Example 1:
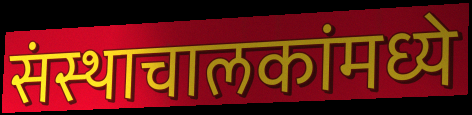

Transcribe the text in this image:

संस्थाचालकांमध्ये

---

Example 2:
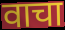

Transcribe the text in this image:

वाचा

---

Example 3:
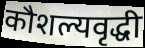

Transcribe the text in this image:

कौशल्यवृद्धी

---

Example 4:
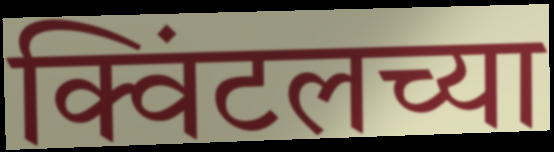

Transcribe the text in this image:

क्विंटलच्या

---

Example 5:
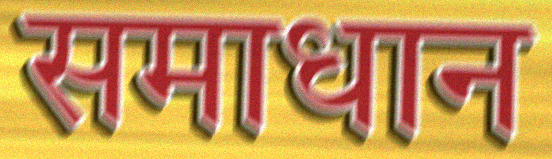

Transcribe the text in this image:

समाधान